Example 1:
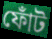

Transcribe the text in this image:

ফোঁট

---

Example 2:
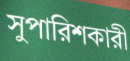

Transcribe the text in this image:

সুপারিশকারী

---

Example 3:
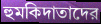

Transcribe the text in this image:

হুমকিদাতাদের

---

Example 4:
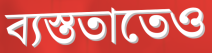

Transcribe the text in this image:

ব্যস্ততাতেও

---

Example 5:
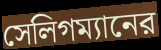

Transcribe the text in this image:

সেলিগম্যানের